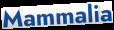
Mammalia